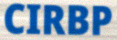
CIRBP